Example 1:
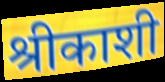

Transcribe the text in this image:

श्रीकाशी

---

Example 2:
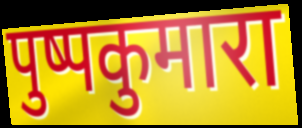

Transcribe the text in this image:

पुष्पकुमारा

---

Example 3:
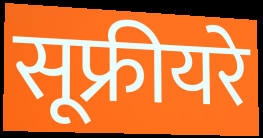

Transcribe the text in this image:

सूफ्रीयरे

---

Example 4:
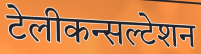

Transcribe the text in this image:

टेलीकन्सल्टेशन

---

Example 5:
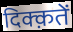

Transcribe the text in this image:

दिक्क़तें